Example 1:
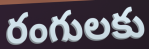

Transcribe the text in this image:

రంగులకు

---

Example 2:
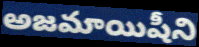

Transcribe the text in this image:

అజమాయిషీని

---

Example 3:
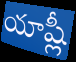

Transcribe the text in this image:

యాష్లీ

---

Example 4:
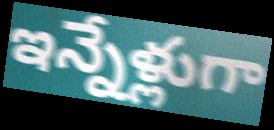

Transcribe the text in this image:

ఇన్నేళ్లుగా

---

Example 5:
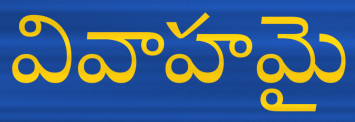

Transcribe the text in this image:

వివాహమై